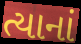
ત્યાનાં